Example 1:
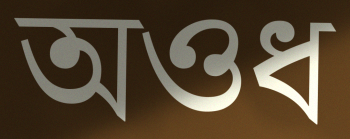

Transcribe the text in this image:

অওধ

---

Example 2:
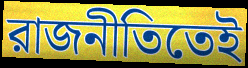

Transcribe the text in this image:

রাজনীতিতেই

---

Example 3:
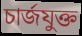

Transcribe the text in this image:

চার্জযুক্ত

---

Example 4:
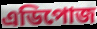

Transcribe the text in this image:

এডিপোজ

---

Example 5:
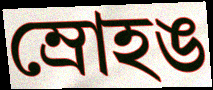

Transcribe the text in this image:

ম্রোহঙ